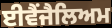
ਈਵੈਂਜੈਲਿਅਮ